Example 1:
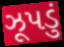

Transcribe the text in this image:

ઝૂપડું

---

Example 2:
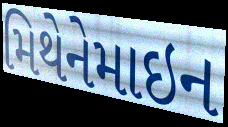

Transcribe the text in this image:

મિથેનેમાઇન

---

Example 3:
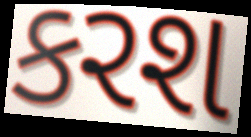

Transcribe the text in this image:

કરશ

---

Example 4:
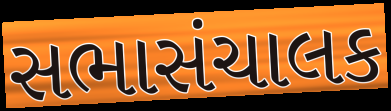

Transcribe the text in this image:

સભાસંચાલક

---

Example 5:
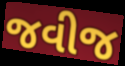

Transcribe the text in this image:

જવીજ